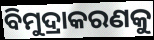
ବିମୁଦ୍ରାକରଣକୁ